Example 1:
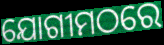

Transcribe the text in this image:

ଯୋଗୀମଠରେ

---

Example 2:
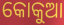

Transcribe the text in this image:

କୋକୁଆ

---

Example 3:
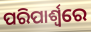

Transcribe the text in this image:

ପରିପାର୍ଶ୍ୱରେ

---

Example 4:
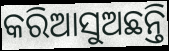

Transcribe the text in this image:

କରିଆସୁଅଛନ୍ତି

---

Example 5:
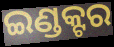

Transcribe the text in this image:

ଇଣ୍ଡକ୍ଟର